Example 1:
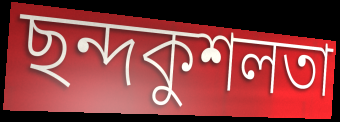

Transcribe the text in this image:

ছন্দকুশলতা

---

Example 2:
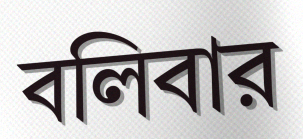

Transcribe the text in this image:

বলিবার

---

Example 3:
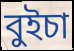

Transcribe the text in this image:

বুইচা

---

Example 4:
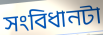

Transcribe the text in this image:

সংবিধানটা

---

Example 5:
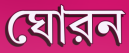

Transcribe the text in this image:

ঘোরন